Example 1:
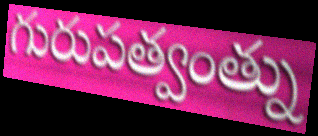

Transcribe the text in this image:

గురుపత్వంత్ను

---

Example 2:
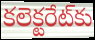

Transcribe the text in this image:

కలెక్టరేట్‌కు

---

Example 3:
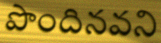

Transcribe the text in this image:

పొందినవని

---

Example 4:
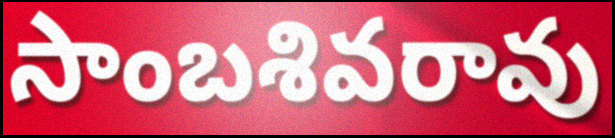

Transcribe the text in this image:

సాంబశివరావు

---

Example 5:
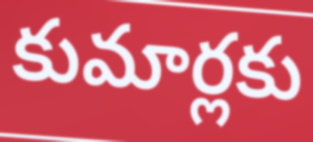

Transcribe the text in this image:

కుమార్లకు